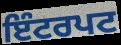
ਇੰਟਰਪਟ